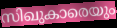
സിഖുകാരെയും